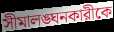
সীমালঙ্ঘনকারীকে